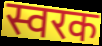
स्वरक